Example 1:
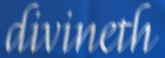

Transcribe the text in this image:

divineth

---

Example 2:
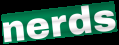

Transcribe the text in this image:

nerds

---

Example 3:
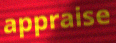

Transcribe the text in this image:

appraise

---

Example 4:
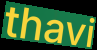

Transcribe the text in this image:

thavi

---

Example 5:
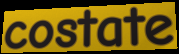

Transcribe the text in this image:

costate